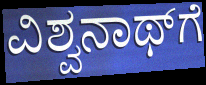
ವಿಶ್ವನಾಥ್‌ಗೆ